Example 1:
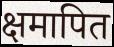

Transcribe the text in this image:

क्षमापित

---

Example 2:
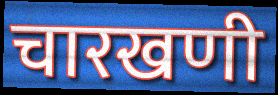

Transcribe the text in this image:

चारखणी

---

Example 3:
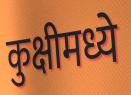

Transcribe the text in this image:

कुक्षीमध्ये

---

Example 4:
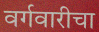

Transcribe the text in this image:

वर्गवारीचा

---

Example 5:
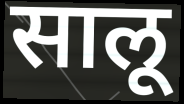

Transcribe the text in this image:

सालू